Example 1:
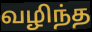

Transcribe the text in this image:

வழிந்த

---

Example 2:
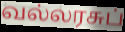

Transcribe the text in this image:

வல்லரசுப்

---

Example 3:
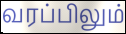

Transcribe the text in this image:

வரப்பிலும்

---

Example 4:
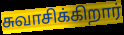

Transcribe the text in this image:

சுவாசிக்கிறார்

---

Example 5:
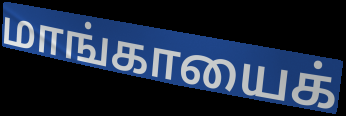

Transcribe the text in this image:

மாங்காயைக்